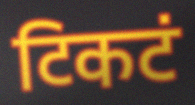
टिकटं